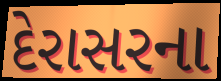
દેરાસરના